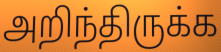
அறிந்திருக்க